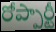
రోప్పార్టీ